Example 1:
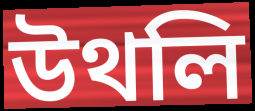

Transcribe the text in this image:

উথলি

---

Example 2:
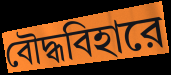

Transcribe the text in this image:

বৌদ্ধবিহারে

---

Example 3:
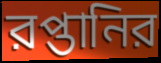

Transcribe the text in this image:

রপ্তানির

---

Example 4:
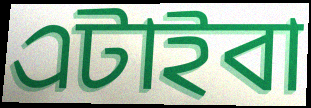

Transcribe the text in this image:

এটাইবা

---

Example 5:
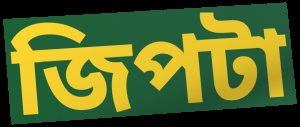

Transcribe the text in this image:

জিপটা